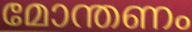
മോന്തണം